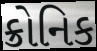
ક્રોનિક